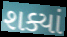
શક્યાં